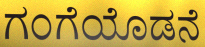
ಗಂಗೆಯೊಡನೆ